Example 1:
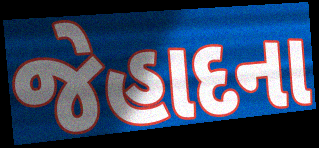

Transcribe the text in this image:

જેહાદના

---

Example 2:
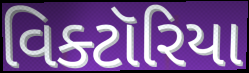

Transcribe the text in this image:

વિક્ટૉરિયા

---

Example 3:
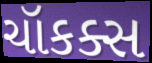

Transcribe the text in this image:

ચૉકક્સ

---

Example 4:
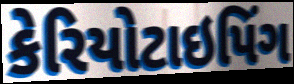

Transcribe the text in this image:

કેરિયોટાઇપિંગ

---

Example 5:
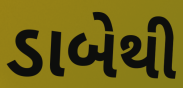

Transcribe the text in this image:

ડાબેથી